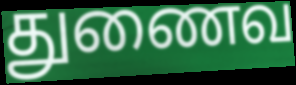
துணைவ